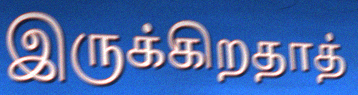
இருக்கிறதாத்